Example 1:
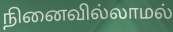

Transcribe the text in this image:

நினைவில்லாமல்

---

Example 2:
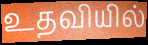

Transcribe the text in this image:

உதவியில்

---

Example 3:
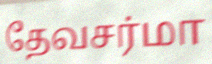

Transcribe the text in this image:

தேவசர்மா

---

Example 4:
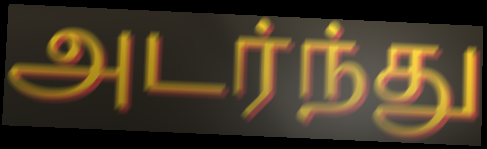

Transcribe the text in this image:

அடர்ந்து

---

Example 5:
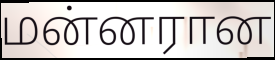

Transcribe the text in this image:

மன்னரான